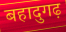
बहादुगढ़